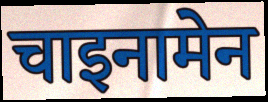
चाइनामेन